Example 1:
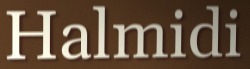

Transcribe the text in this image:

Halmidi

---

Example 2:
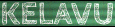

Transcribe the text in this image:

KELAVU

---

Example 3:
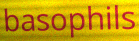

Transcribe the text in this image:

basophils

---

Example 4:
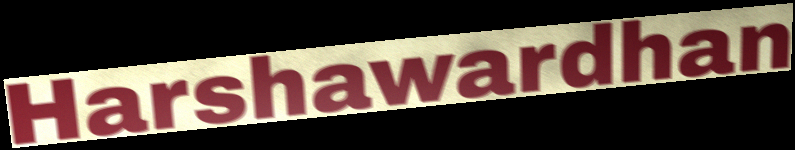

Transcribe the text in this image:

Harshawardhan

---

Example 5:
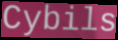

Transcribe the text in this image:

Cybils